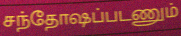
சந்தோஷப்படணும்